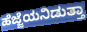
ಹೆಜ್ಜೆಯನಿಡುತ್ತಾ